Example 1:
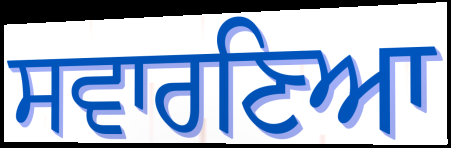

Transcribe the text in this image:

ਸਵਾਰਣਿਆ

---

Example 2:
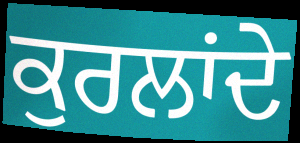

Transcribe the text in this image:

ਕੁਰਲਾਂਦੇ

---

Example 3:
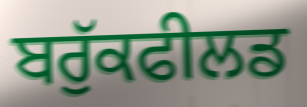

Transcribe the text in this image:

ਬਰੁੱਕਫੀਲਡ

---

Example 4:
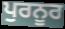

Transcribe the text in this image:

ਪੁਰਨੂਰ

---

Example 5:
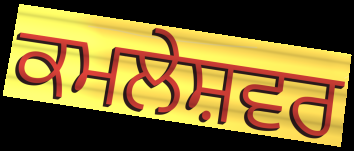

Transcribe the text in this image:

ਕਮਲੇਸ਼ਵਰ